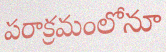
పరాక్రమంలోనూ